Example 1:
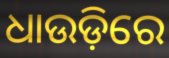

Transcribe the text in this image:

ଧାଉଡ଼ିରେ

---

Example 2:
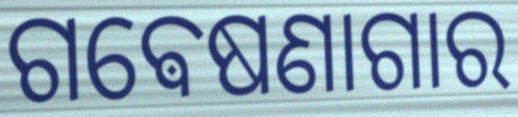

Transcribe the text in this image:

ଗଵେଷଣାଗାର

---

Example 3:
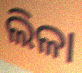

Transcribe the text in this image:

ଲିଳା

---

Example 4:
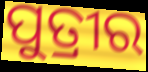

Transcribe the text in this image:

ପୁତ୍ରୀର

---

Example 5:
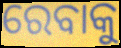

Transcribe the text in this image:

ରେବାକୁ